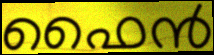
ഫൈൻ